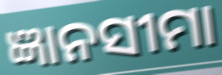
ଜ୍ଞାନସୀମା